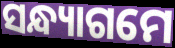
ସନ୍ଧ୍ୟାଗମେ